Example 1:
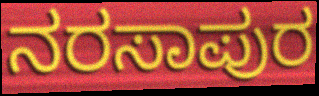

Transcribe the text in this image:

ನರಸಾಪುರ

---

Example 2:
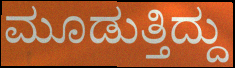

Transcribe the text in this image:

ಮೂಡುತ್ತಿದ್ದು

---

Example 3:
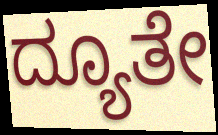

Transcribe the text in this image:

ದ್ಯೂತೇ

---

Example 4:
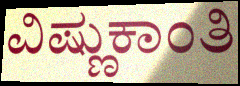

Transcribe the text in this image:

ವಿಷ್ಣುಕಾಂತಿ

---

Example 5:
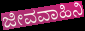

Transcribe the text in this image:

ಜೀವವಾಹಿನಿ